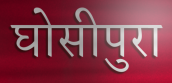
घोसीपुरा